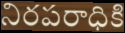
నిరపరాధికి